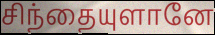
சிந்தையுளானே